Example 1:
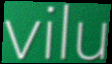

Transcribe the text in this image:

vilu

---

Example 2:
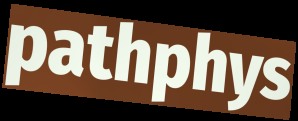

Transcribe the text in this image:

pathphys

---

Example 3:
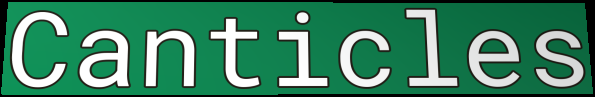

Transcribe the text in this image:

Canticles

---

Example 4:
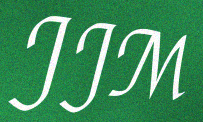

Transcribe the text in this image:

JJM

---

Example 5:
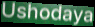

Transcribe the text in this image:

Ushodaya